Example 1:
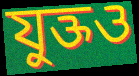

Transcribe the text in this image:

যুক্তও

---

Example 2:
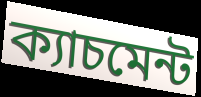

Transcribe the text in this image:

ক্যাচমেন্ট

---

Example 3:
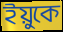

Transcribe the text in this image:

ইয়ুকে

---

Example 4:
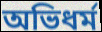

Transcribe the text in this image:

অভিধর্ম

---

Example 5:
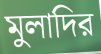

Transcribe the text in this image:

মুলাদির